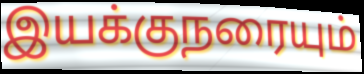
இயக்குநரையும்